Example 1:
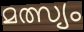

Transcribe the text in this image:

മത്സ്യം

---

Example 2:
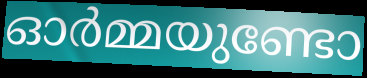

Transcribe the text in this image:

ഓർമ്മയുണ്ടോ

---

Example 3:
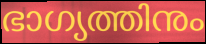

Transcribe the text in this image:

ഭാഗ്യത്തിനും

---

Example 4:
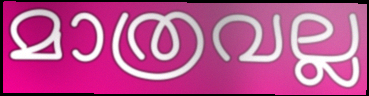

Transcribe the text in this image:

മാത്രവല്ല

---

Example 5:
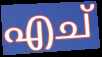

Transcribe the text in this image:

എച്